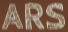
ARS